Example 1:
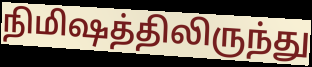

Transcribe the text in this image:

நிமிஷத்திலிருந்து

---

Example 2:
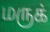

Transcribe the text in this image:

மருக்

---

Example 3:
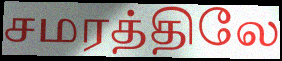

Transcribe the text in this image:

சமரத்திலே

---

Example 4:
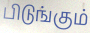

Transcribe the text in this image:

பிடுங்கும்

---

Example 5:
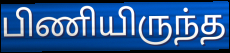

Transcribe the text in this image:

பிணியிருந்த